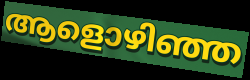
ആളൊഴിഞ്ഞ